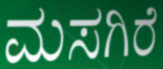
ಮಸಗಿರೆ